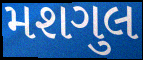
મશગુલ